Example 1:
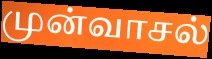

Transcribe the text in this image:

முன்வாசல்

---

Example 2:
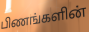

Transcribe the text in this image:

பிணங்களின்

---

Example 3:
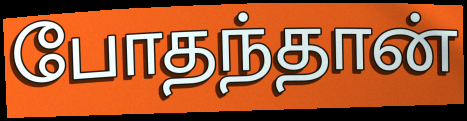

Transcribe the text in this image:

போதந்தான்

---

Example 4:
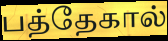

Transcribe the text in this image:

பத்தேகால்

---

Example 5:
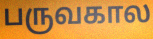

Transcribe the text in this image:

பருவகால